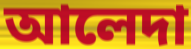
আলেদা